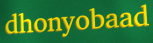
dhonyobaad